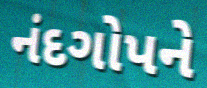
નંદગોપને